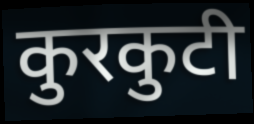
कुरकुटी